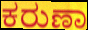
ಕರುಣಾ